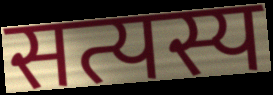
सत्यस्य